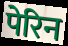
पेरिन